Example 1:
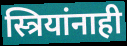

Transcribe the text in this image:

स्त्रियांनाही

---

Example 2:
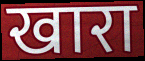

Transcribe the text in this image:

खारा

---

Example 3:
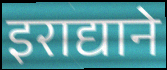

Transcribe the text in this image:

इराद्याने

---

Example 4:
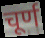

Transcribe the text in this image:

चूर्ण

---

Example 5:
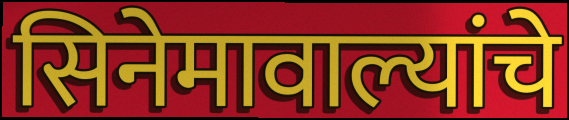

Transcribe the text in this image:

सिनेमावाल्यांचे